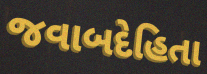
જવાબદેહિતા